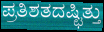
ಪ್ರತಿಶತದಷ್ಟಿತ್ತು